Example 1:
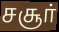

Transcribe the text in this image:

சசூர்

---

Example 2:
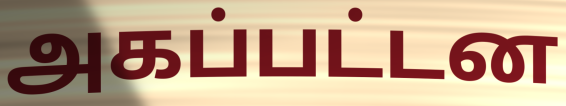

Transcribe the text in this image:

அகப்பட்டன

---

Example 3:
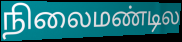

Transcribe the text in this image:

நிலைமண்டில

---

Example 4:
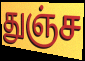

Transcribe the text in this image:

துஞ்ச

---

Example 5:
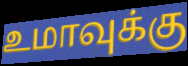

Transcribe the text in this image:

உமாவுக்கு